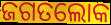
ଜଗତଲୋକ